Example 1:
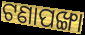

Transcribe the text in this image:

ଟଣାପଙ୍ଖା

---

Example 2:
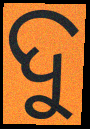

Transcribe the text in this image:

ଦୁ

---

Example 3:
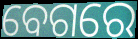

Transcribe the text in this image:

ବେଗରେ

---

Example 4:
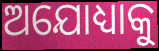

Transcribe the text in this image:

ଅଯୋଧ୍ୟାକୁ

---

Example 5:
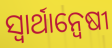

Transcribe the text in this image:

ସ୍ବାର୍ଥାନ୍ବେଷୀ